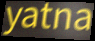
yatna